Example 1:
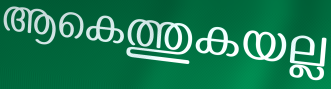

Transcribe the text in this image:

ആകെത്തുകയല്ല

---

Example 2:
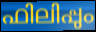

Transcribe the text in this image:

ഫിലിപ്പും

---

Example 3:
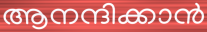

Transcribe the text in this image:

ആനന്ദിക്കാൻ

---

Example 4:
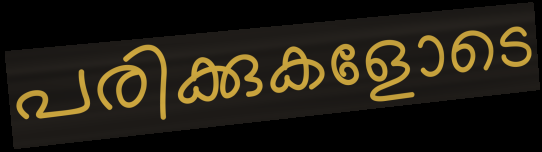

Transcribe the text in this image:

പരിക്കുകളോടെ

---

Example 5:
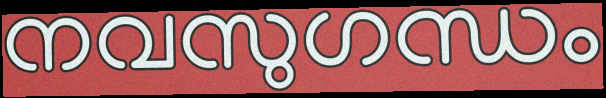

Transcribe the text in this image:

നവസുഗന്ധം